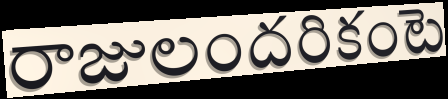
రాజులందరికంటె